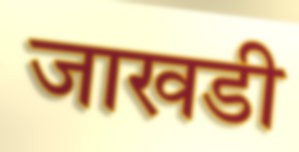
जाखडी